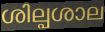
ശില്പശാല